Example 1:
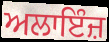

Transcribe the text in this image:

ਅਲਾਇੰਜ਼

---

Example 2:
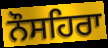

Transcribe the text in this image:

ਨੌਸਹਿਰਾ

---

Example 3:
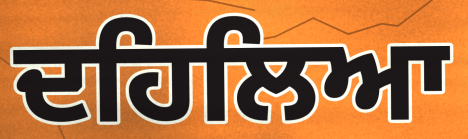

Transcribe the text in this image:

ਦਹਿਲਿਆ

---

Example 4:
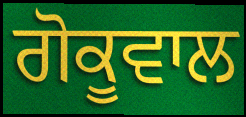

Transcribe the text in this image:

ਗੋਕੂਵਾਲ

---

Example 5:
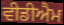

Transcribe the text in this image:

ਵੀਡੀਐਮ